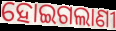
ହୋଇଗଲାଣୀ